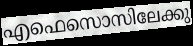
എഫെസൊസിലേക്കു